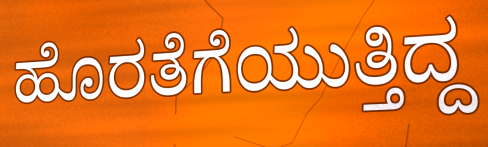
ಹೊರತೆಗೆಯುತ್ತಿದ್ದ